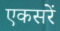
एकसरें